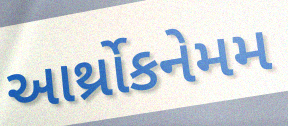
આર્થ્રોકનેમમ